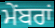
ਮੇਂਬਰਾਂ